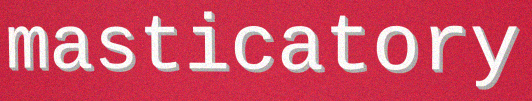
masticatory